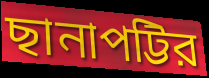
ছানাপট্টির